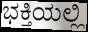
ಭಕ್ತಿಯಲ್ಲಿ